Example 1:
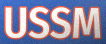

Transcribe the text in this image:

USSM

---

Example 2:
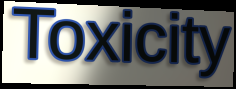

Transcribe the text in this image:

Toxicity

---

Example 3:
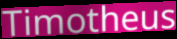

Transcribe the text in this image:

Timotheus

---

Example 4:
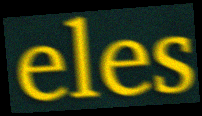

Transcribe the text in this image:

eles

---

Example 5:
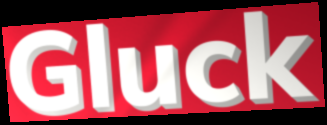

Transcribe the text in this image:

Gluck